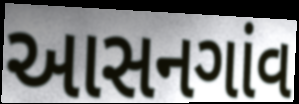
આસનગાંવ